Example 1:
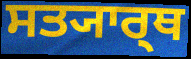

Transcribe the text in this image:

ਸਤ੍ਯਾਰ੍ਥ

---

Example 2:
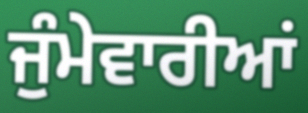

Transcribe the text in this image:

ਜੁੰਮੇਵਾਰੀਆਂ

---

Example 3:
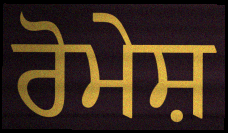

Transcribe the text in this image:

ਰੋਮੇਸ਼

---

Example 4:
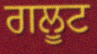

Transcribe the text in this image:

ਗਲੂਟ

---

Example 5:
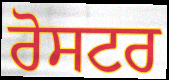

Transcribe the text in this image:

ਰੋਸਟਰ